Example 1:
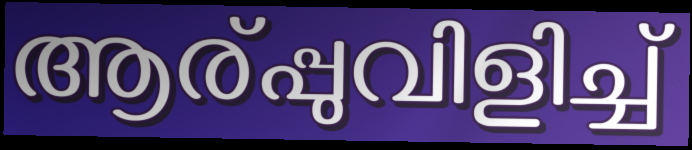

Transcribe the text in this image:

ആര്പ്പുവിളിച്ച്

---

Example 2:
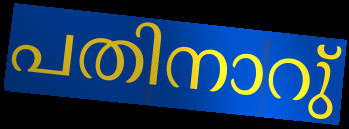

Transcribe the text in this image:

പതിനാറു്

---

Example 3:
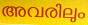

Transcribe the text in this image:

അവരിലും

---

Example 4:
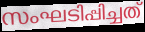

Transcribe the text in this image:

സംഘടിപ്പിച്ചത്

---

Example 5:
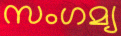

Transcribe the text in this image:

സംഗമ്യ